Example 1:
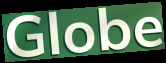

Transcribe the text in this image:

Globe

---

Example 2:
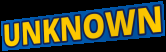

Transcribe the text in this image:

UNKNOWN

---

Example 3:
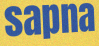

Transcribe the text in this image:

sapna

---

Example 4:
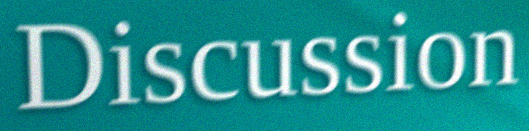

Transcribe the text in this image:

Discussion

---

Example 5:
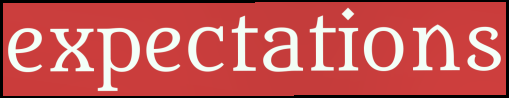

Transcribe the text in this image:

expectations